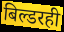
बिल्डरही